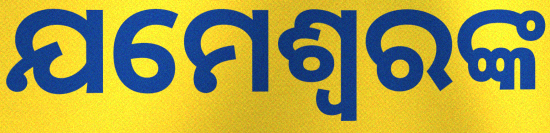
ଯମେଶ୍ୱରଙ୍କ